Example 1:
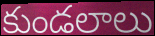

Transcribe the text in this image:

కుండలాలు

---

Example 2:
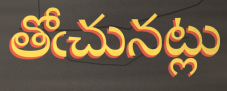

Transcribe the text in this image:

తోఁచునట్లు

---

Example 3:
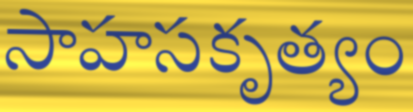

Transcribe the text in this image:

సాహసకృత్యం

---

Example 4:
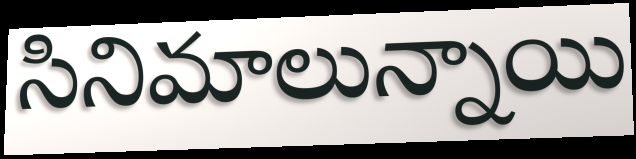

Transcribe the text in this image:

సినిమాలున్నాయి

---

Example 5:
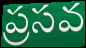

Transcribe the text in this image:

ప్రసవ